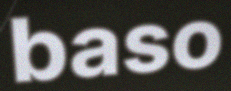
baso